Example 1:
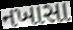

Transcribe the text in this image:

નખાસા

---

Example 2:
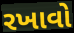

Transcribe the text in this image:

રખાવો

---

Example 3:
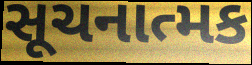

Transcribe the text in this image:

સૂચનાત્મક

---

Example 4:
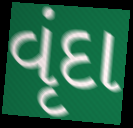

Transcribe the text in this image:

વૃંદા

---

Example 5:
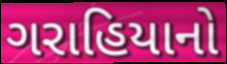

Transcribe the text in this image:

ગરાહિયાનો